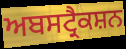
ਅਬਸਟ੍ਰੈਕਸ਼ਨ